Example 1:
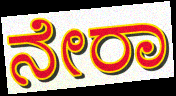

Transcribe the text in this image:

ನೇರಾ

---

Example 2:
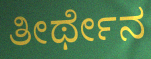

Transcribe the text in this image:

ತೀರ್ಥೇನ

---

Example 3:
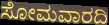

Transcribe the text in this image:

ಸೋಮವಾರದಿ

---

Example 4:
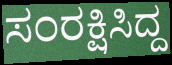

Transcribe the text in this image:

ಸಂರಕ್ಷಿಸಿದ್ದ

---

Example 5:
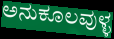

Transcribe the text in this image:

ಅನುಕೂಲವುಳ್ಳ